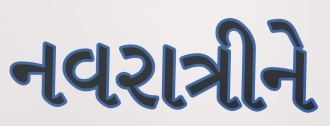
નવરાત્રીને